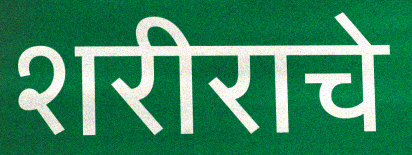
शरीराचे